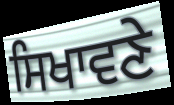
ਸਿਖਾਵਣੇ